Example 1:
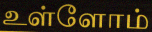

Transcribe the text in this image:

உள்ளோம்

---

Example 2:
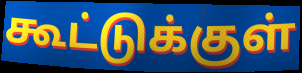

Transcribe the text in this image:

கூட்டுக்குள்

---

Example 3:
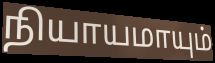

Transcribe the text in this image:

நியாயமாயும்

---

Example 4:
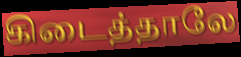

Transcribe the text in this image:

கிடைத்தாலே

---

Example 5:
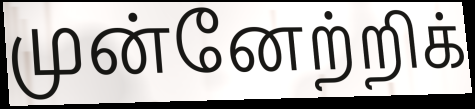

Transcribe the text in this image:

முன்னேற்றிக்